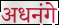
अधनंगे